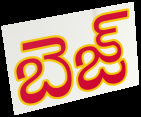
బెజ్